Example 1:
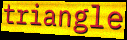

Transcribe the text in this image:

triangle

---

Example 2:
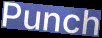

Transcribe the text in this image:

Punch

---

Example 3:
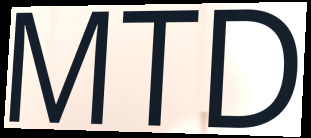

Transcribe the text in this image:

MTD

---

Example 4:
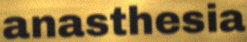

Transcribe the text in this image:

anasthesia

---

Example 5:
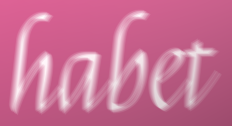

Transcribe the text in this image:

habet